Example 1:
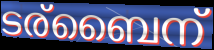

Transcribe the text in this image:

ടര്ബൈന്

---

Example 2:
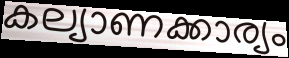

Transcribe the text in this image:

കല്യാണക്കാര്യം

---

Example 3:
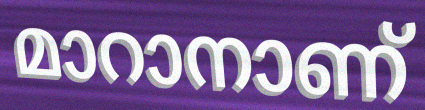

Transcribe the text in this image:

മാറാനാണ്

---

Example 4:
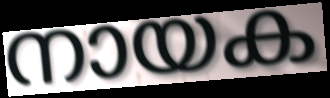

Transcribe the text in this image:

നായക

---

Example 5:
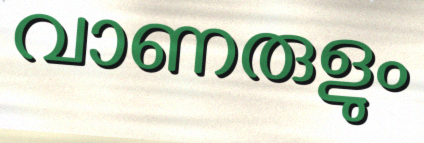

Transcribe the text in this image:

വാണരുളും